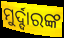
ମୁର୍ଦ୍ଦାରଙ୍କ